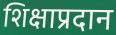
शिक्षाप्रदान